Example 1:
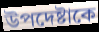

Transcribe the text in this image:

উপদেষ্টাকে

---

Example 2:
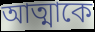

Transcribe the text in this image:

আত্মাকে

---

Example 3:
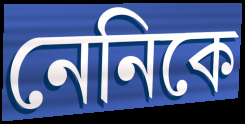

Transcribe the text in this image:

নেনিকে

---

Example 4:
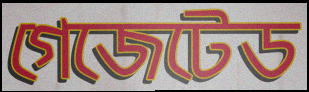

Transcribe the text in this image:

গেজেটেড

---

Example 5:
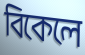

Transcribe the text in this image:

বিকেলে